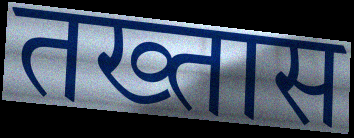
तख्तास